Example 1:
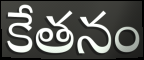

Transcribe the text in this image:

కేతనం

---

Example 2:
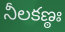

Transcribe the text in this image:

నీలకణ్ఠః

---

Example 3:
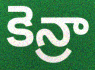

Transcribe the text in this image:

కెన్రా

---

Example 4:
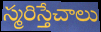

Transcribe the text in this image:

స్మరిస్తేచాలు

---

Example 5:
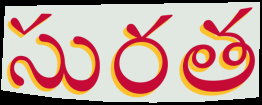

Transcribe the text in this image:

సురత